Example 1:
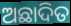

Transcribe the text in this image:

ଅଛାଦିତ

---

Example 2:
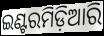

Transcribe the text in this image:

ଇଣ୍ଟରମିଡ଼ିଆରି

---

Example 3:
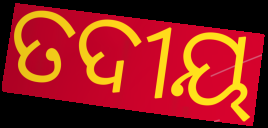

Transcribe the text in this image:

ତଦୀୟ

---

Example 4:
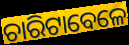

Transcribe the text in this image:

ଚାରିଟାବେଳେ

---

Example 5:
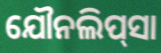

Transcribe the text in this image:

ଯୌନଲିପ୍‌ସା